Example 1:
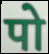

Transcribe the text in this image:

पो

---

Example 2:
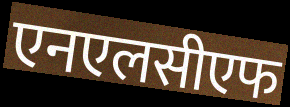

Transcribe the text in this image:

एनएलसीएफ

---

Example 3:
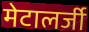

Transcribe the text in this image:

मेटालर्जी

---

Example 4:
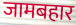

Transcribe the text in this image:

जामबहार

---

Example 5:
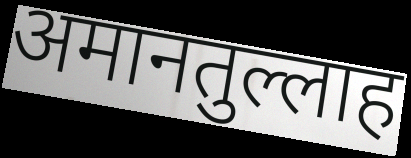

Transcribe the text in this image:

अमानतुल्लाह